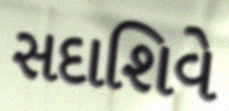
સદાશિવે